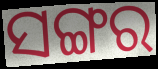
ସଙ୍ଗର